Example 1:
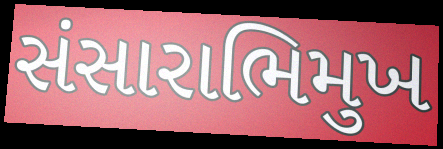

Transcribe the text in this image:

સંસારાભિમુખ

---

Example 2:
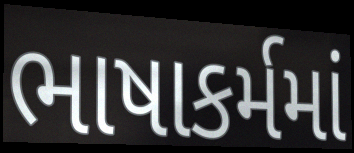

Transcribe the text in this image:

ભાષાકર્મમાં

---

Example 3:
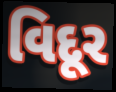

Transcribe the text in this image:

વિદૂર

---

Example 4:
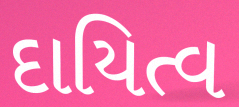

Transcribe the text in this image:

દાયિત્વ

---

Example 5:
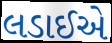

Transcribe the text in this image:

લડાઈએ